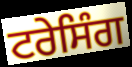
ਟਰੇਸਿੰਗ